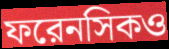
ফরেনসিকও